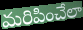
మరిపించేలా